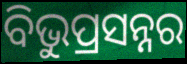
ବିଭୁପ୍ରସନ୍ନର